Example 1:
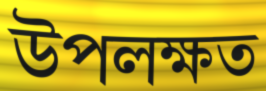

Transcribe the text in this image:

উপলক্ষত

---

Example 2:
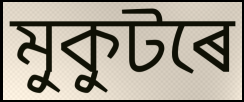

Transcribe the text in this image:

মুকুটৰে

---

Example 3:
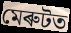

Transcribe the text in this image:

মেৰুটত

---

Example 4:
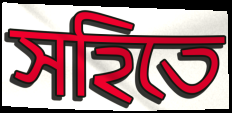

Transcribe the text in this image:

সহিতে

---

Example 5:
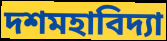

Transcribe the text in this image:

দশমহাবিদ্যা